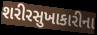
શરીરસુખાકારીના